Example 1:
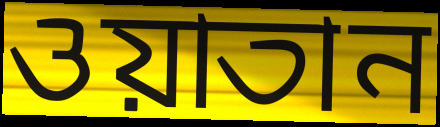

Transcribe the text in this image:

ওয়াতান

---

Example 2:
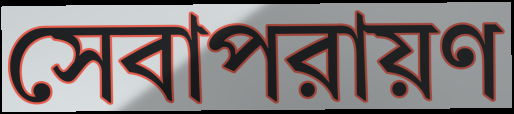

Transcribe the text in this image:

সেবাপরায়ণ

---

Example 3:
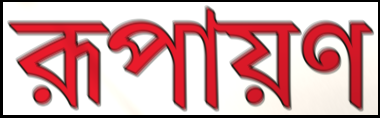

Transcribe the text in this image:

রূপায়ণ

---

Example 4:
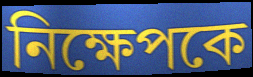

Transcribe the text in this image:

নিক্ষেপকে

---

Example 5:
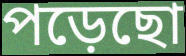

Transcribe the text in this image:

পড়েছো